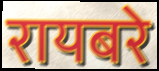
रायबरे